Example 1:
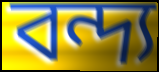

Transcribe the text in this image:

বন্দ্য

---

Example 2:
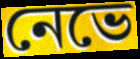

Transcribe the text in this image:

নেভে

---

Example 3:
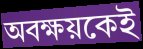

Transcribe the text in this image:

অবক্ষয়কেই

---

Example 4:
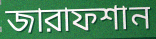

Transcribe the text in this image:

জারাফশান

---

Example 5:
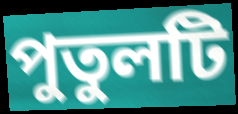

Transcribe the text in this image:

পুতুলটি